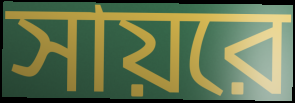
সায়রে